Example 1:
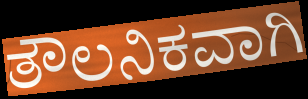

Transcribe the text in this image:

ತೌಲನಿಕವಾಗಿ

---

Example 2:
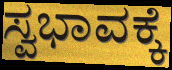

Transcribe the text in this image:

ಸ್ವಭಾವಕ್ಕೆ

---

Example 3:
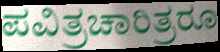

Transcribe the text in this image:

ಪವಿತ್ರಚಾರಿತ್ರರೂ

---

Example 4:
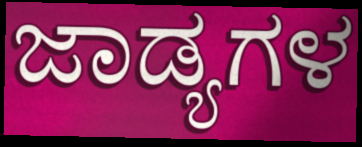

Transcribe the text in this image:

ಜಾಡ್ಯಗಳ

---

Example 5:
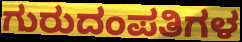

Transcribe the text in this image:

ಗುರುದಂಪತಿಗಳ